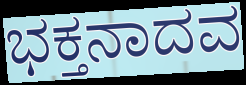
ಭಕ್ತನಾದವ